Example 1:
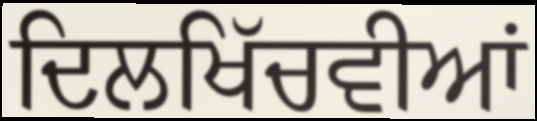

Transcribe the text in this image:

ਦਿਲਖਿੱਚਵੀਆਂ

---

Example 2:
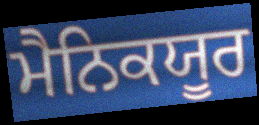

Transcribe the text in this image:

ਮੈਨਿਕਯੂਰ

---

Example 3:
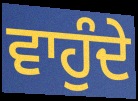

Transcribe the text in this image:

ਵਾਹੁੰਦੇ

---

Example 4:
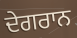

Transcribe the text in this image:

ਦੇਗਰਾਨ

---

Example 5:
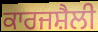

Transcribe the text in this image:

ਕਾਰਜਸ਼ੈਲੀ